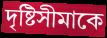
দৃষ্টিসীমাকে